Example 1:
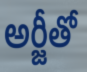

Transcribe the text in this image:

అర్జీతో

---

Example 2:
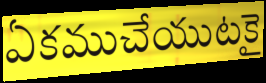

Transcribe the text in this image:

ఏకముచేయుటకై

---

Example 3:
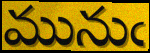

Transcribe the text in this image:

మునుఁ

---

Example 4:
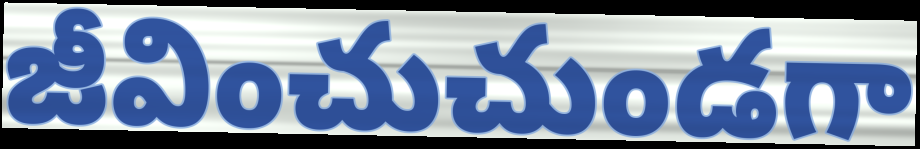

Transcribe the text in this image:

జీవించుచుండగా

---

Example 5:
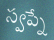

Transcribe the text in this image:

స్వప్నే